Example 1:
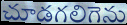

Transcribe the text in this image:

చూడగలిగెను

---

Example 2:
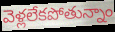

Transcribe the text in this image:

వెళ్లలేకపోతున్నాం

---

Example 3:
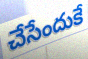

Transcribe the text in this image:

చేసేందుకే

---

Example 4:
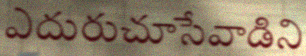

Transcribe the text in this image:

ఎదురుచూసేవాడిని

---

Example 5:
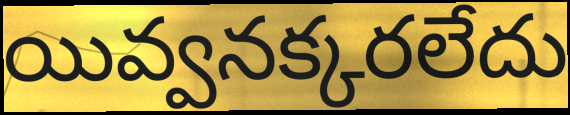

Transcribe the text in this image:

యివ్వనక్కరలేదు